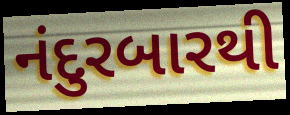
નંદુરબારથી